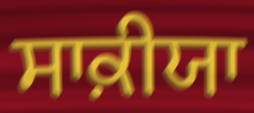
ਸਾਕ਼ੀਯਾ